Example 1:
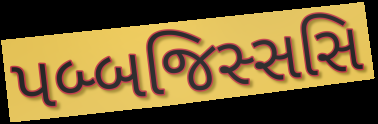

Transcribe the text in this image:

પબ્બજિસ્સસિ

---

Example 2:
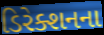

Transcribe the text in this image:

ડિરેક્શનના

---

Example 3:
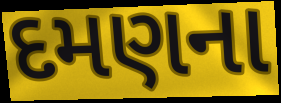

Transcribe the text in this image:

દમણના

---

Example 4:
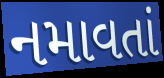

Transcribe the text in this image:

નમાવતાં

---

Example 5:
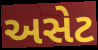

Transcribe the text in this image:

અસેટ